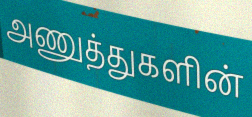
அணுத்துகளின்